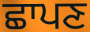
ਛਾਪਣ